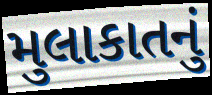
મુલાકાતનું